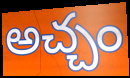
అచ్చం